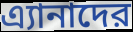
এ্যানাদের